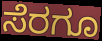
ಸೆರಗೂ